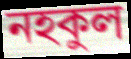
নহকুল